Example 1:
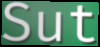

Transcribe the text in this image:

Sut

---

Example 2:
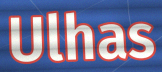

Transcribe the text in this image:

Ulhas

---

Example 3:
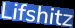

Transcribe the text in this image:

Lifshitz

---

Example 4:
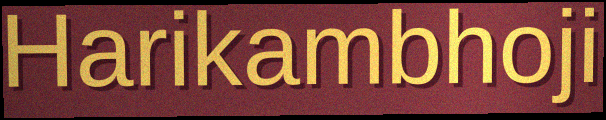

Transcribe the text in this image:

Harikambhoji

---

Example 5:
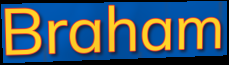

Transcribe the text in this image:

Braham